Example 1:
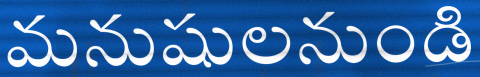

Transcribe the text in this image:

మనుషులనుండి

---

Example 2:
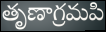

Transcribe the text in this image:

తృణాగ్రమపి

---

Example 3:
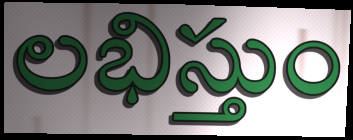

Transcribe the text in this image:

లభిస్తుం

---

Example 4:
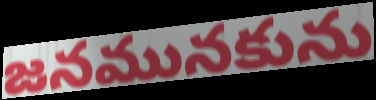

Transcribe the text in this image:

జనమునకును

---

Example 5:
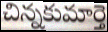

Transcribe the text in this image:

చిన్నకుమార్తె